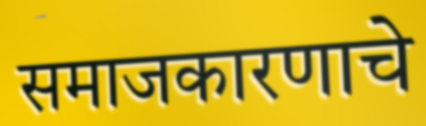
समाजकारणाचे